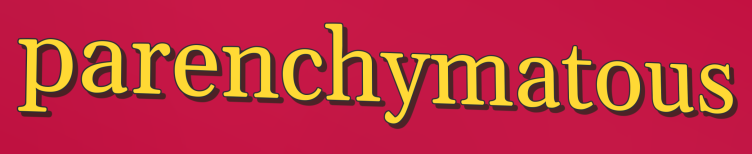
parenchymatous